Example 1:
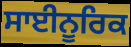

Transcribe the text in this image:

ਸਾਈਨੂਰਿਕ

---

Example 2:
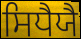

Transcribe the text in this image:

ਸਿਧੈਯੈ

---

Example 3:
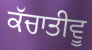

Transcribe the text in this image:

ਕੱਚਾਤੀਵੂ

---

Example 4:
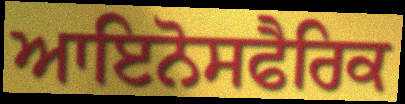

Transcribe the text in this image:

ਆਇਨੋਸਫੈਰਿਕ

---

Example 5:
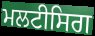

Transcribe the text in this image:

ਮਲਟੀਸਿਗ